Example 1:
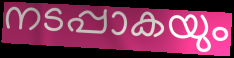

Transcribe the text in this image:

നടപ്പാകയും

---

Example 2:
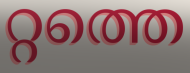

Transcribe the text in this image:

റ്റത്തെ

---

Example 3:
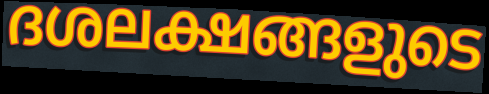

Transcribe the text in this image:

ദശലക്ഷങ്ങളുടെ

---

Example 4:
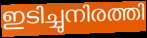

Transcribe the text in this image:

ഇടിച്ചുനിരത്തി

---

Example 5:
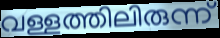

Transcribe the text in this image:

വള്ളത്തിലിരുന്ന്